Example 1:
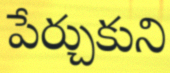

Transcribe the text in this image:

పేర్చుకుని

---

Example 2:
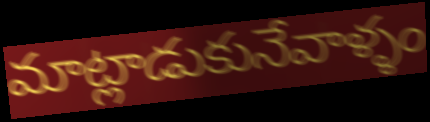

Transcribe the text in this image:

మాట్లాడుకునేవాళ్ళం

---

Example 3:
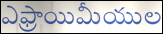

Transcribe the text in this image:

ఎఫ్రాయిమీయుల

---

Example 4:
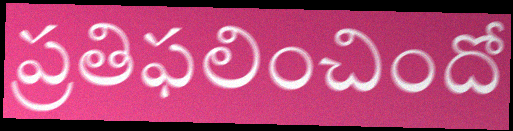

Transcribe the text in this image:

ప్రతిఫలించిందో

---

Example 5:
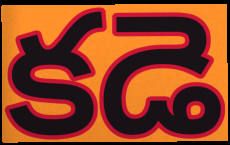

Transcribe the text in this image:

కడె